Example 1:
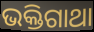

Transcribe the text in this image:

ଭକ୍ତିଗାଥା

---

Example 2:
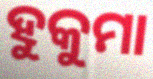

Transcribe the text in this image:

ହୁକୁମା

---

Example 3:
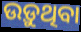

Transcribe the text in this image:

ଉଡ଼ୁଥିବା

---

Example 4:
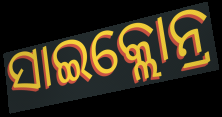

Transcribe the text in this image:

ସାଇକ୍ଲୋନ୍ର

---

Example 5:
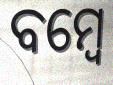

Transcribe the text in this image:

ବମ୍ୱେ